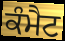
ਕੰਮੈਟ